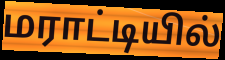
மராட்டியில்